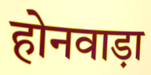
होनवाड़ा